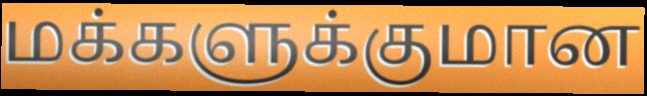
மக்களுக்குமான